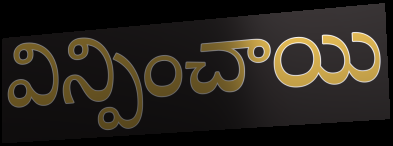
విన్పించాయి